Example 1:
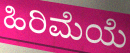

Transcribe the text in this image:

ಹಿರಿಮೆಯೆ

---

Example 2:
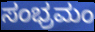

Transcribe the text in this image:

ಸಂಭ್ರಮಂ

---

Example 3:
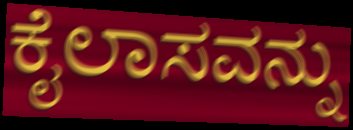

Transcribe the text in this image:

ಕೈಲಾಸವನ್ನು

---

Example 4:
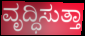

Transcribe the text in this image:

ವೃದ್ಧಿಸುತ್ತಾ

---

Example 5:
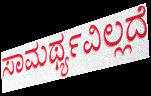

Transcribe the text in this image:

ಸಾಮರ್ಥ್ಯವಿಲ್ಲದೆ